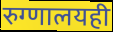
रुग्णालयही